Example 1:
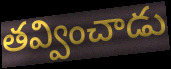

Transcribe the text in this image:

తవ్వించాడు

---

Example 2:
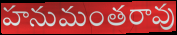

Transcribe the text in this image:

హనుమంతరావు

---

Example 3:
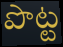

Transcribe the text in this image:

పొట్ట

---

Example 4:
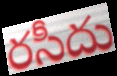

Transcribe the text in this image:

రసీదు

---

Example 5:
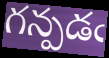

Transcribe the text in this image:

గన్పడఁ